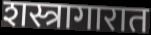
शस्त्रागारात